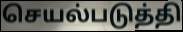
செயல்படுத்தி